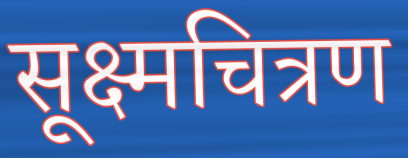
सूक्ष्मचित्रण